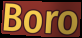
Boro